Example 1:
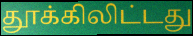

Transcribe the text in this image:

தூக்கிலிட்டது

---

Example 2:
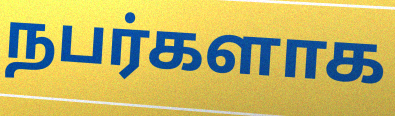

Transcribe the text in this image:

நபர்களாக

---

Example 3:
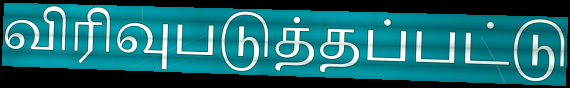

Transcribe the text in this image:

விரிவுபடுத்தப்பட்டு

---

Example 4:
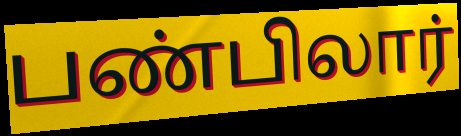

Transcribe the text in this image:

பண்பிலார்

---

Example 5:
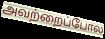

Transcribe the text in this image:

அவற்றைப்போல